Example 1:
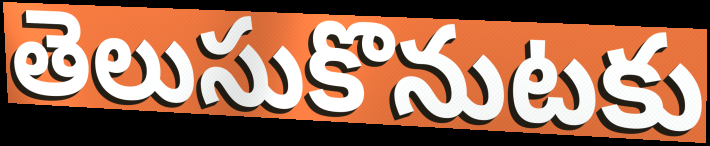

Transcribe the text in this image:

తెలుసుకొనుటకు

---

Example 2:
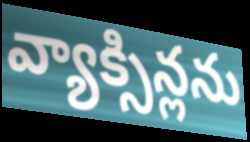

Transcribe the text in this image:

వ్యాక్సిన్లను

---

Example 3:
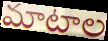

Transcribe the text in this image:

మాటాల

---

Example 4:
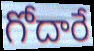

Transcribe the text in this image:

గోదారే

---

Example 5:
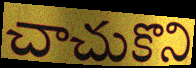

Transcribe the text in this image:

చాచుకొని